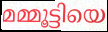
മമ്മൂട്ടിയെ